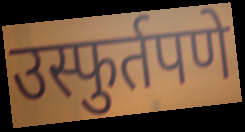
उस्फुर्तपणे